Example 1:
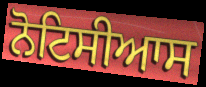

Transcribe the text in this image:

ਨੋਟਿਸੀਆਸ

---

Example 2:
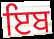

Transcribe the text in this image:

ਇਬ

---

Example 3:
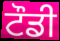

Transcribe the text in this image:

ਟੌਡੀ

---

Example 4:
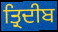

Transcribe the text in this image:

ਤ੍ਰਿਦੀਬ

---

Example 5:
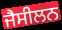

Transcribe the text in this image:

ਜੈਸੀਲਨ